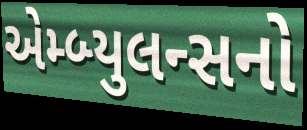
એમ્બ્યુલન્સનો